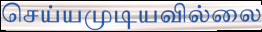
செய்யமுடியவில்லை